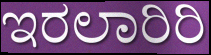
ಇರಲಾರಿರಿ